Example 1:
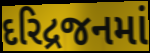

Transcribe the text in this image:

દરિદ્રજનમાં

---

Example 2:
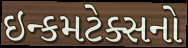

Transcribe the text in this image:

ઇન્કમટેક્સનો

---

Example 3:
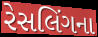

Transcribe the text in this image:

રેસલિંગના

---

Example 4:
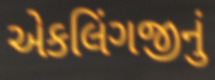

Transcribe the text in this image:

એકલિંગજીનું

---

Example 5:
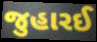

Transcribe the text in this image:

જુહારઈ